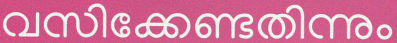
വസിക്കേണ്ടതിന്നും